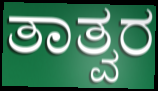
ತಾತ್ವರ